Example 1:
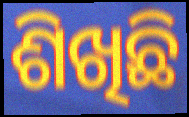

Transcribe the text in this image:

ଶିଖିଛି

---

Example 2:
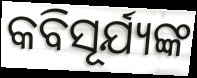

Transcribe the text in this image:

କବିସୂର୍ଯ୍ୟଙ୍କ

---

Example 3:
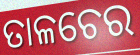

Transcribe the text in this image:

ତାଳଚେର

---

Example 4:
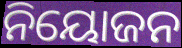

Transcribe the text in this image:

ନିୟୋଜନ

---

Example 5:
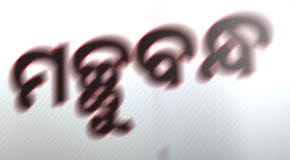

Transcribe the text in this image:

ମଚ୍ଛୁବନ୍ଧ